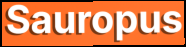
Sauropus